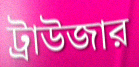
ট্রাউজার